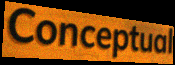
Conceptual